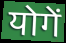
योगें